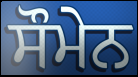
ਸੌਮੇਨ